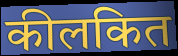
कीलकित